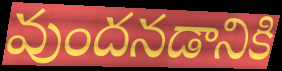
వుందనడానికి